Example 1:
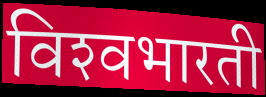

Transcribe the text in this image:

विश्वभारती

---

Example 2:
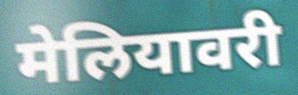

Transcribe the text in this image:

मेलियावरी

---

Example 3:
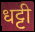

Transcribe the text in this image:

धट्टी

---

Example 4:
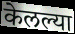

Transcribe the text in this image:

केलल्या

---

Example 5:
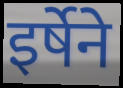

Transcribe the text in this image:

इर्षेने